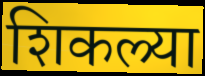
शिकल्या